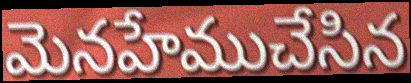
మెనహేముచేసిన